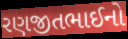
રણજીતભાઈનો